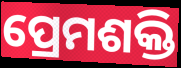
ପ୍ରେମଶକ୍ତି